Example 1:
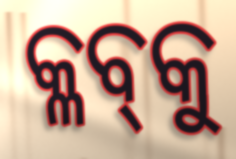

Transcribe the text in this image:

କ୍ଳବ୍‌କୁ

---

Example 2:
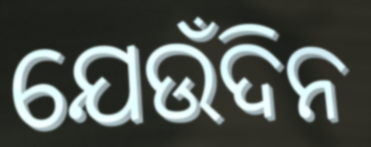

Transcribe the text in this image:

ଯେଉଁଦିନ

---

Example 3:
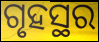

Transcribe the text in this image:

ଗୃହସ୍ଥର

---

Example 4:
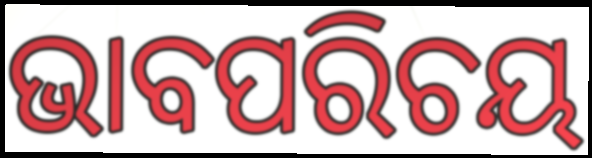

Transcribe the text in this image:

ଭାବପରିଚୟ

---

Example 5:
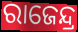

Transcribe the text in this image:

ରାଜେନ୍ଦ୍ର